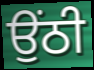
ਉਂਠੀ